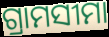
ଗ୍ରାମସୀମା